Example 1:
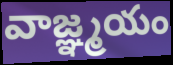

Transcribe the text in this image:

వాజ్ఞ్మయం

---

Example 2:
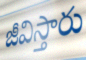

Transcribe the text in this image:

జీవిస్తారు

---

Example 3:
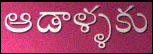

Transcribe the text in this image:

ఆడాళ్ళకు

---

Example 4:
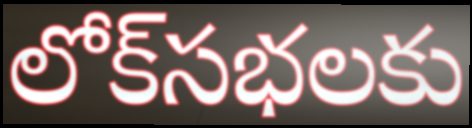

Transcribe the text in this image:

లోక్‌సభలకు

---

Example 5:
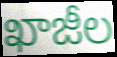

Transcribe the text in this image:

ఖాజీల